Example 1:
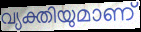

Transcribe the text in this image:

വ്യക്തിയുമാണ്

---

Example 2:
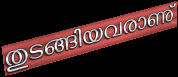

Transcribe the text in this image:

തുടങ്ങിയവരാണു്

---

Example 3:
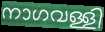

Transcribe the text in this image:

നാഗവള്ളി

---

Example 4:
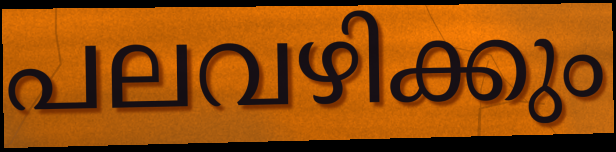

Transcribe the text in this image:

പലവഴിക്കും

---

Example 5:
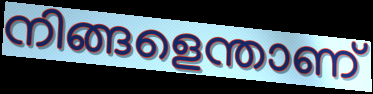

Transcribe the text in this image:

നിങ്ങളെന്താണ്